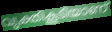
വ്യക്തികൂടിയാണ്